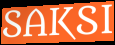
SAKSI